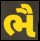
ભૈ